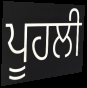
ਪੂਹਲੀ